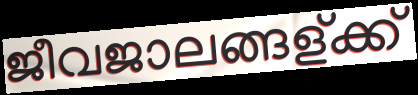
ജീവജാലങ്ങള്ക്ക്